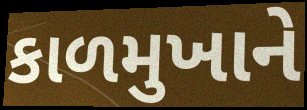
કાળમુખાને